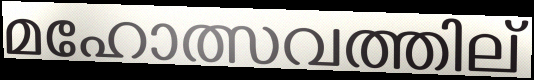
മഹോത്സവത്തില്